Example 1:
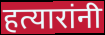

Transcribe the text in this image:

हत्यारांनी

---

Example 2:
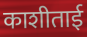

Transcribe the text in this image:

काशीताई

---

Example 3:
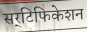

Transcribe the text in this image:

सर्टिफिकेशन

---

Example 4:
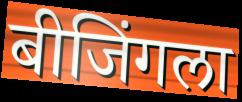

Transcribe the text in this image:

बीजिंगला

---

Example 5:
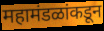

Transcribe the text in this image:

महामंडळांकडून